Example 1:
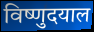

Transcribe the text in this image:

विष्णुदयाल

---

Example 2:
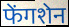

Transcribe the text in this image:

फेंगशेन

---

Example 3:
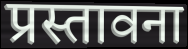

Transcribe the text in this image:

प्रस्तावना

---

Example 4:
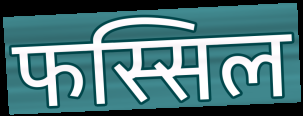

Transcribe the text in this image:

फस्सिल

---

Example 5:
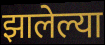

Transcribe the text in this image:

झालेल्या